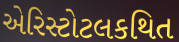
એરિસ્ટોટલકથિત